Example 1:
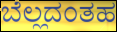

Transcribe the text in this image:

ಬೆಲ್ಲದಂತಹ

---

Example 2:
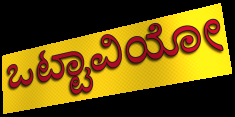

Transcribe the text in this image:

ಒಟ್ಟಾವಿಯೋ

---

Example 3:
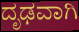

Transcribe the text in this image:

ದೃಢವಾಗಿ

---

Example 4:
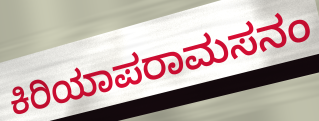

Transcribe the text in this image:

ಕಿರಿಯಾಪರಾಮಸನಂ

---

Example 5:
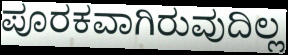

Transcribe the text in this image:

ಪೂರಕವಾಗಿರುವುದಿಲ್ಲ